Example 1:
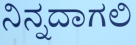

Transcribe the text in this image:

ನಿನ್ನದಾಗಲಿ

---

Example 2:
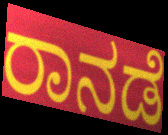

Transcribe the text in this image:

ರಾನಡೆ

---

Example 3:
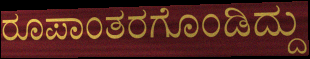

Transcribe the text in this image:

ರೂಪಾಂತರಗೊಂಡಿದ್ದು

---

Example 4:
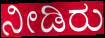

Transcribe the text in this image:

ನೀಡಿರು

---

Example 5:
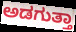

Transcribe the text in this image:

ಅಡಗುತ್ತಾ